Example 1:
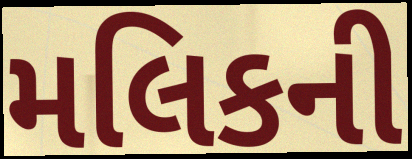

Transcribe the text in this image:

મલિકની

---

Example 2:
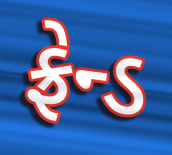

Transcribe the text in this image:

ફ્રેન્ડ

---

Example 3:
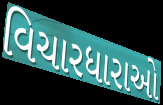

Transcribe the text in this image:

વિચારધારાઓ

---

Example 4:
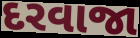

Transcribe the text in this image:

દરવાજા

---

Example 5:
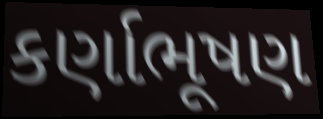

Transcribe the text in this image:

કર્ણાભૂષણ